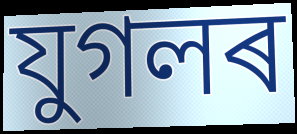
যুগলৰ